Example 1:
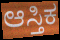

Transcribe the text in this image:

ಆಸ್ತಿಕ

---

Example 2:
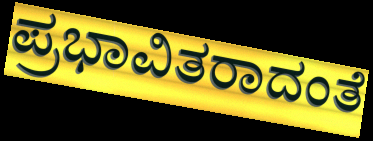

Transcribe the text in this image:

ಪ್ರಭಾವಿತರಾದಂತೆ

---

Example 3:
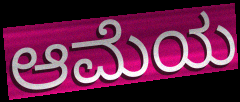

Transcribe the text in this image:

ಆಮೆಯ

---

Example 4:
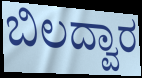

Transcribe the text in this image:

ಬಿಲದ್ವಾರ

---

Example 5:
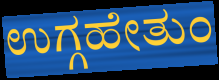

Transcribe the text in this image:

ಉಗ್ಗಹೇತುಂ